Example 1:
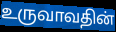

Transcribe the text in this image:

உருவாவதின்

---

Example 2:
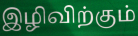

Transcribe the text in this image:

இழிவிற்கும்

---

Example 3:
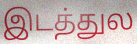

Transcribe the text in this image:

இடத்துல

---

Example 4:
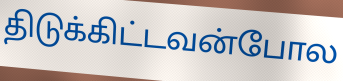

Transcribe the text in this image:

திடுக்கிட்டவன்போல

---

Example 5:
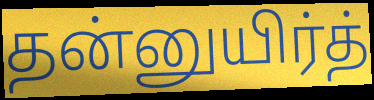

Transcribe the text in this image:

தன்னுயிர்த்